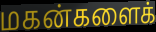
மகன்களைக்